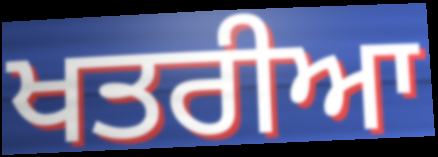
ਖਤਰੀਆ